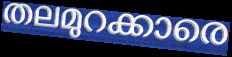
തലമുറക്കാരെ